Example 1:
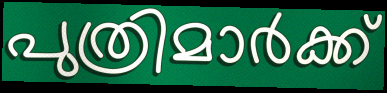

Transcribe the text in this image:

പുത്രിമാർക്ക്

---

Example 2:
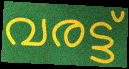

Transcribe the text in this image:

വരട്ട്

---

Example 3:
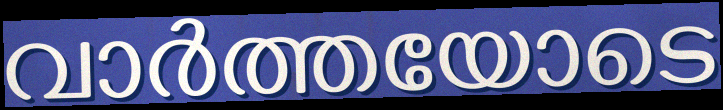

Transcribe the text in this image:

വാർത്തയോടെ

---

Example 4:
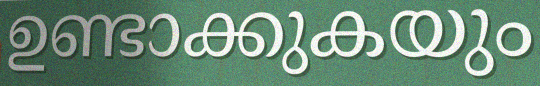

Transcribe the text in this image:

ഉണ്ടാക്കുകയും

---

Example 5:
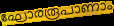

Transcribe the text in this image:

ഘോരരൂപാണാം